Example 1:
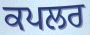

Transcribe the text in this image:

ਕਪਲਰ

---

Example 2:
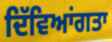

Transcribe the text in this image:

ਦਿੱਵਿਆਂਗਤਾ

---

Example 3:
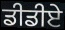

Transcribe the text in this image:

ਡੀਡੀਏ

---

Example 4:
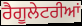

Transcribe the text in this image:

ਰੈਗੂਲੇਟਰੀਆਂ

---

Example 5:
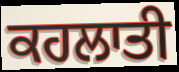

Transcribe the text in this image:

ਕਹਲਾਤੀ